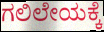
ಗಲಿಲೇಯಕ್ಕೆ